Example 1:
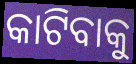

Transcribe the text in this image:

କାଟିବାକୁ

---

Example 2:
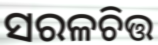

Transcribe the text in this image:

ସରଳଚିତ୍ତ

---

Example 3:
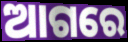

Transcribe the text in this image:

ଆଗରେ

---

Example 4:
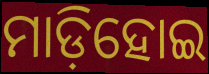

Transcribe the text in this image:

ମାଡ଼ିହୋଇ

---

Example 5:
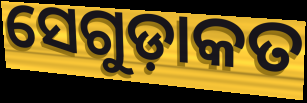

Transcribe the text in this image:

ସେଗୁଡ଼ାକତ